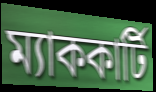
ম্যাককার্টি